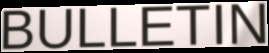
BULLETIN